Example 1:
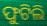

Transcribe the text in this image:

ଫୁଟିଲି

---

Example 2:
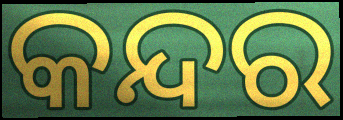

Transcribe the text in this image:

କନ୍ଦର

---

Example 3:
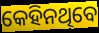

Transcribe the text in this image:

କେହିନଥିବେ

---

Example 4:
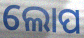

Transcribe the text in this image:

ଲୋପ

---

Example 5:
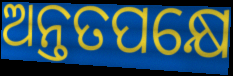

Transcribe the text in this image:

ଅନ୍ତତପକ୍ଷେ